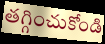
తగ్గించుకోండి